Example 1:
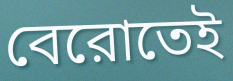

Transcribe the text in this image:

বেরোতেই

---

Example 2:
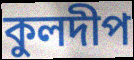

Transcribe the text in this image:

কুলদীপ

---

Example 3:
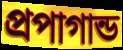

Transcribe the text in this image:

প্রপাগান্ড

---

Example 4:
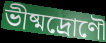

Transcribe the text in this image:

ভীষ্মদ্রোণৌ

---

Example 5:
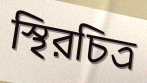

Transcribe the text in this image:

স্থিরচিত্র